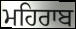
ਮਹਿਰਾਬ